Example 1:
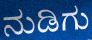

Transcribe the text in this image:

ನುಡಿಗು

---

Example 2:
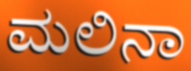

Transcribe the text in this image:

ಮಲಿನಾ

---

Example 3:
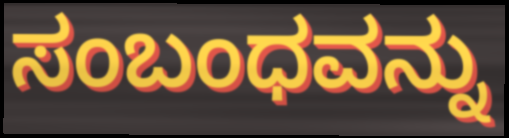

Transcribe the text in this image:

ಸಂಬಂಧವನ್ನು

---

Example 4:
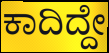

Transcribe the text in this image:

ಕಾದಿದ್ದೇ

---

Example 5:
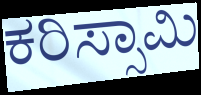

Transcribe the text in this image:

ಕರಿಸ್ಸಾಮಿ